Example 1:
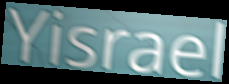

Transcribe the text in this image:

Yisrael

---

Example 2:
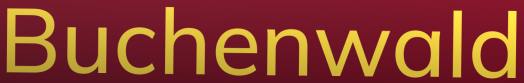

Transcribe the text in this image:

Buchenwald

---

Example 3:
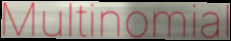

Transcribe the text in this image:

Multinomial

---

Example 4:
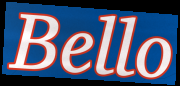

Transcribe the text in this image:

Bello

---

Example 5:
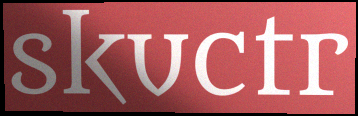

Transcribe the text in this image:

skuctr